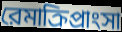
রেমাক্রিপ্রাংসা